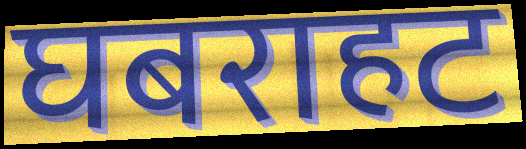
घबराहट